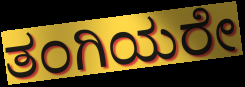
ತಂಗಿಯರೇ